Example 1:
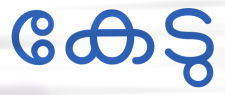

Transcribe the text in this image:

കേടു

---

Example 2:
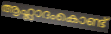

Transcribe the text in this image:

ആഹ്ലാദംകൊണ്ട്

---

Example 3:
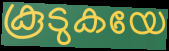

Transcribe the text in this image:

കൂടുകയേ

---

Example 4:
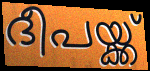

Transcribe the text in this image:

ദീപയ്ക്ക്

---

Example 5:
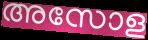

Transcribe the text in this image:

അസോള